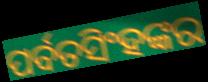
ପର୍ବତସିଂହଙ୍କର